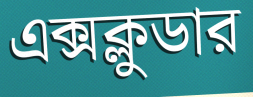
এক্সক্লুডার